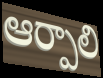
ఆర్పాలి